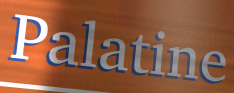
Palatine